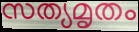
സത്യമൃതം